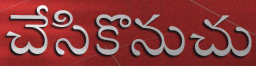
చేసికొనుచు